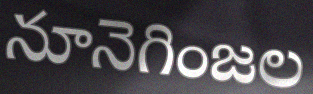
నూనెగింజల